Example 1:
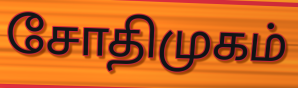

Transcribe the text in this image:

சோதிமுகம்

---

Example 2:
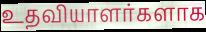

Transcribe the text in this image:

உதவியாளர்களாக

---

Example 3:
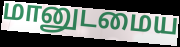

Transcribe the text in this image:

மானுடமைய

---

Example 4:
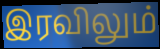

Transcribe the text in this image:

இரவிலும்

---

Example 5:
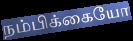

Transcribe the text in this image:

நம்பிக்கையோ